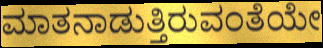
ಮಾತನಾಡುತ್ತಿರುವಂತೆಯೇ